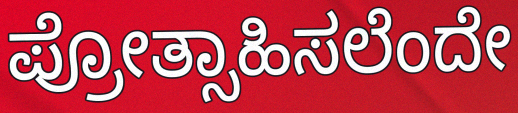
ಪ್ರೋತ್ಸಾಹಿಸಲೆಂದೇ